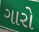
ગારો